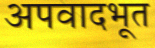
अपवादभूत